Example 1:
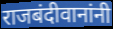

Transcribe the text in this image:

राजबंदीवानांनी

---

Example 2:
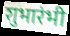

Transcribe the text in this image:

शुभारंभी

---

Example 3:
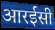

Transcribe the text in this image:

आरईसी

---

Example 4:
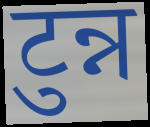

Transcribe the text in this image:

टुन्न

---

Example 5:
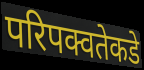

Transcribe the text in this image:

परिपक्वतेकडे